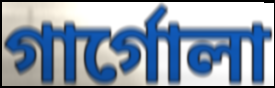
গাৰ্গোলা